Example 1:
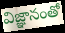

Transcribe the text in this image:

విజ్ఞానంతో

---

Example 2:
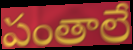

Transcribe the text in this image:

పంతాలే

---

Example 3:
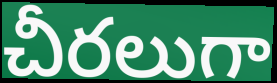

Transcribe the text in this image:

చీరలుగా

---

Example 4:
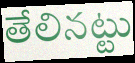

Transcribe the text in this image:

తేలినట్టు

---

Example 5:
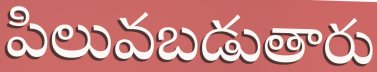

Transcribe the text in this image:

పిలువబడుతారు